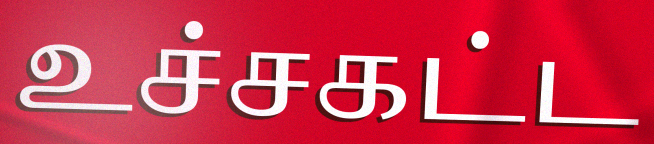
உச்சகட்ட